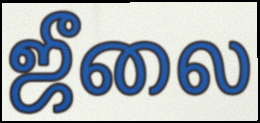
ஜீலை